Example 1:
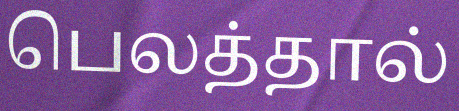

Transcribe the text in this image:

பெலத்தால்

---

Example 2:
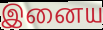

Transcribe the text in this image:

இனைய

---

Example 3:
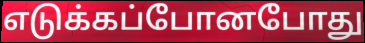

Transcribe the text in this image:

எடுக்கப்போனபோது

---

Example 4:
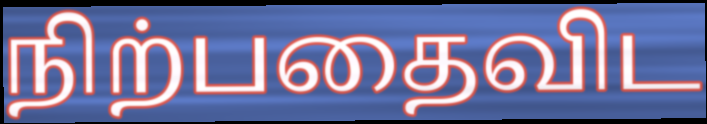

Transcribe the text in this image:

நிற்பதைவிட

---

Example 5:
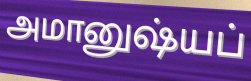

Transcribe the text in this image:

அமானுஷ்யப்